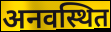
अनवस्थित